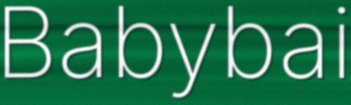
Babybai